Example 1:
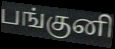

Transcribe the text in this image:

பங்குனி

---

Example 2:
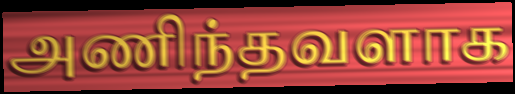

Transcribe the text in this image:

அணிந்தவளாக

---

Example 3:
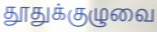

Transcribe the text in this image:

தூதுக்குழுவை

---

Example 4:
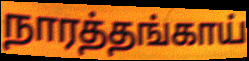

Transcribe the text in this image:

நாரத்தங்காய்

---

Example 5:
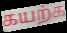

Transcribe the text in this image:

கயற்க